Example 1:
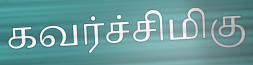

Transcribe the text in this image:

கவர்ச்சிமிகு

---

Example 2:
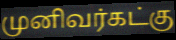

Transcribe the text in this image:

முனிவர்கட்கு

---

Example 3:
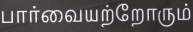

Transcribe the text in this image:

பார்வையற்றோரும்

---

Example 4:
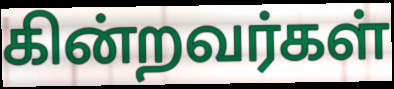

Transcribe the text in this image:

கின்றவர்கள்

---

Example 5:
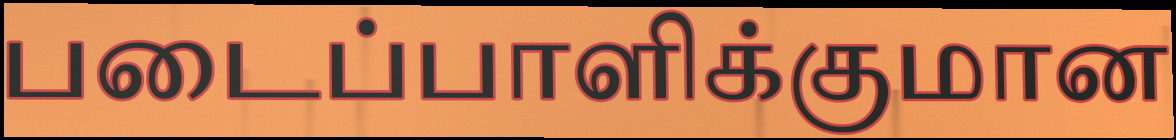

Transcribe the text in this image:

படைப்பாளிக்குமான